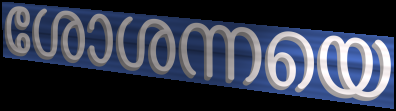
ശോശന്നയെ